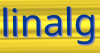
linalg